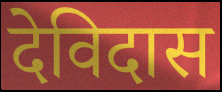
देविदास